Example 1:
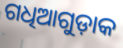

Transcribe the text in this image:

ଗଧିଆଗୁଡ଼ାକ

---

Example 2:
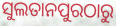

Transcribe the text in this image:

ସୁଲତାନପୁରଠାରୁ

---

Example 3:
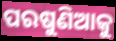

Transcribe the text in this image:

ପରଷୁଣିଆକୁ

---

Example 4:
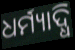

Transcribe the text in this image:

ଧର୍ମ୍ୟାଦ୍ଧି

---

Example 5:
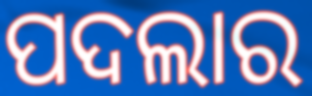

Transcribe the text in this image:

ପଦଲାର